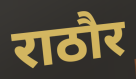
राठौर